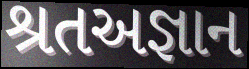
શ્રતઅજ્ઞાન